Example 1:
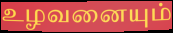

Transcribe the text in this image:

உழவனையும்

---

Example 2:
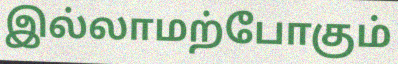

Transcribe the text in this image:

இல்லாமற்போகும்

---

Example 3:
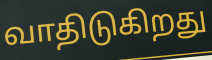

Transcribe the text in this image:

வாதிடுகிறது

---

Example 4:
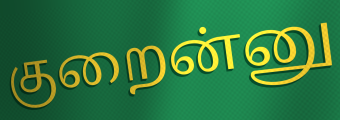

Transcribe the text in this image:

குறைன்னு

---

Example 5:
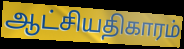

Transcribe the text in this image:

ஆட்சியதிகாரம்